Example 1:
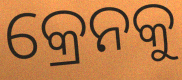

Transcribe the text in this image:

କ୍ରେନକୁ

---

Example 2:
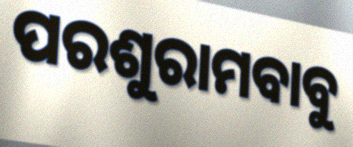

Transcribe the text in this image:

ପରଶୁରାମବାବୁ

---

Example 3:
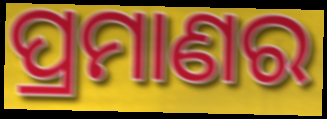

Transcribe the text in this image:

ପ୍ରମାଣର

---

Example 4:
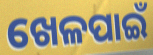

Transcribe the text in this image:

ଖେଳପାଇଁ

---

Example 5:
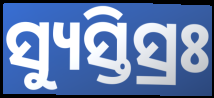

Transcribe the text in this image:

ସ୍ୟୁସ୍ତିସ୍ରଃ